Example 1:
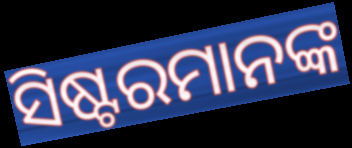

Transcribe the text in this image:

ସିଷ୍ଟରମାନଙ୍କ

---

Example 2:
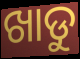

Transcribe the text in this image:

ଖାଡୁ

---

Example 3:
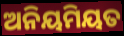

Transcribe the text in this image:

ଅନିୟମିୟତ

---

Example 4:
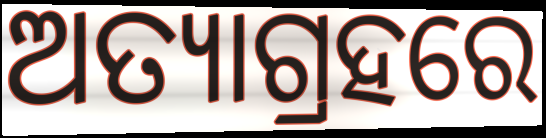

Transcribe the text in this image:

ଅତ୍ୟାଗ୍ରହରେ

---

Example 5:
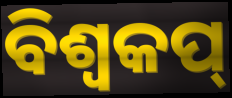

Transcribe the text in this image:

ବିଶ୍ବକପ୍